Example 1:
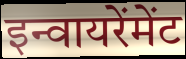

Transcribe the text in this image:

इन्वायरेंमेंट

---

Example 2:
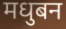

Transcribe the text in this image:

मधुबन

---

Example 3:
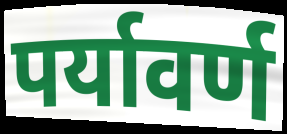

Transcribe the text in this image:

पर्यावर्ण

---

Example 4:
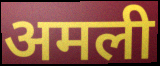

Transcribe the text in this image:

अमली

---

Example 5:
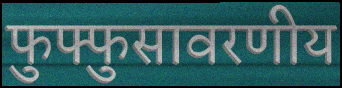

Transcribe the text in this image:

फुफ्फुसावरणीय